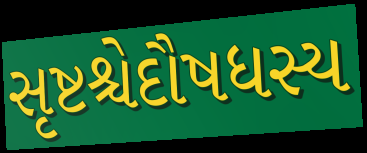
સૃષ્ટશ્ચેદૌષધસ્ય